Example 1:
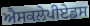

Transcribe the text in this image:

ਐਸਕਲੇਪੀਏਡਸ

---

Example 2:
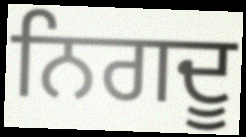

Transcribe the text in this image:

ਨਿਗਦੂ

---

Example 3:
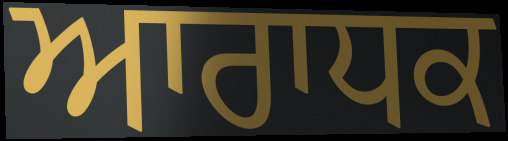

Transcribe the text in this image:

ਆਰਾਧਕ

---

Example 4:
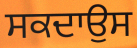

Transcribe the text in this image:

ਸਕਦਾਉਸ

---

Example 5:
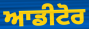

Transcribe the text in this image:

ਆਡੀਟੋਰ